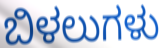
ಬಿಳಲುಗಳು